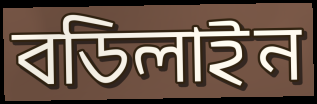
বডিলাইন